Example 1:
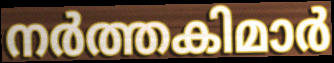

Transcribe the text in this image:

നർത്തകിമാർ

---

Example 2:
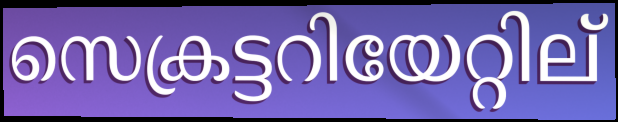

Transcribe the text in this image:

സെക്രട്ടറിയേറ്റില്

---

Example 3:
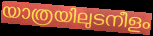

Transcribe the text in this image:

യാത്രയിലുടനീളം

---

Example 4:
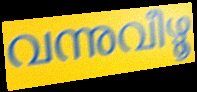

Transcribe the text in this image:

വന്നുവീഴൂ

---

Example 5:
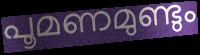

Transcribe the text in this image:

പൂമണമുണ്ടും